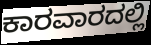
ಕಾರವಾರದಲ್ಲಿ